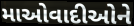
માઓવાદીઓને